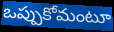
ఒప్పుకోమంటూ